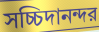
সচ্চিদানন্দর